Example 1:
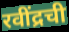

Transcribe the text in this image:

रवींद्रची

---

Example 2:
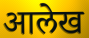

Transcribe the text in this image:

आलेख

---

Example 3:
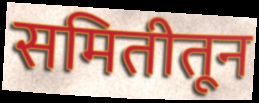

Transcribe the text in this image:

समितीतून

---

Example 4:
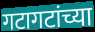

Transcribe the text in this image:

गटागटांच्या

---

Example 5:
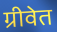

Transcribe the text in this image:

ग्रीवेत